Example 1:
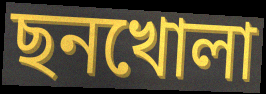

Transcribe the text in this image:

ছনখোলা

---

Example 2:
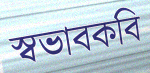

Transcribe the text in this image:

স্বভাবকবি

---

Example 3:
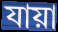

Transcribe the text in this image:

যায়া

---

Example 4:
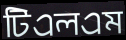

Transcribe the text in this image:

টিএলএম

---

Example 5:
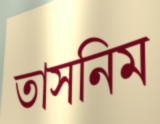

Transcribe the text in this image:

তাসনিম